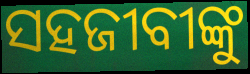
ସହଜୀବୀଙ୍କୁ